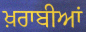
ਖ਼ਰਾਬੀਆਂ